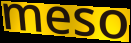
meso